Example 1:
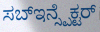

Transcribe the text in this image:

ಸಬ್ಇನ್ಸ್ಪೆಕ್ಟರ್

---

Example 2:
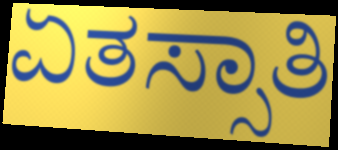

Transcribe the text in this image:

ಏತಸ್ಸಾತಿ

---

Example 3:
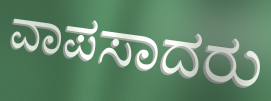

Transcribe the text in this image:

ವಾಪಸಾದರು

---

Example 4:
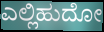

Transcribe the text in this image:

ಎಲ್ಲಿಹುದೋ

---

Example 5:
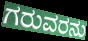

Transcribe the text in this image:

ಗರುವರನು